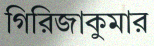
গিরিজাকুমার